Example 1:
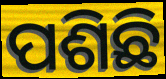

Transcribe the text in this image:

ପଶିଛି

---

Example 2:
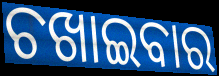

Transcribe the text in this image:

ଚଖାଇବାର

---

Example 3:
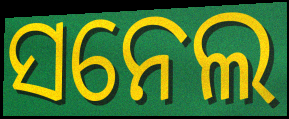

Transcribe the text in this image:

ସନେଲ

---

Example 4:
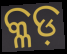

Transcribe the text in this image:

କ୍ଳଡ଼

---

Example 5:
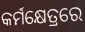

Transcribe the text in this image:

କର୍ମକ୍ଷେତ୍ରରେ